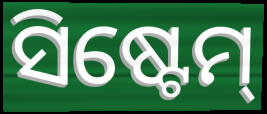
ସିଷ୍ଟେମ୍